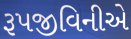
રૂપજીવિનીએ